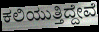
ಕಲಿಯುತ್ತಿದ್ದೇವೆ